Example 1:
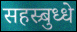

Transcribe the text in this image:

सहस्र्बुध्धे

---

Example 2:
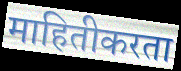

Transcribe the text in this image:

माहितीकरता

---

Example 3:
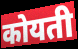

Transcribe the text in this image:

कोयती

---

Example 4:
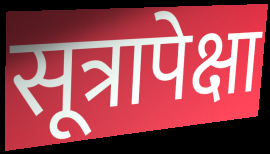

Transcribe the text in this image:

सूत्रापेक्षा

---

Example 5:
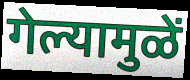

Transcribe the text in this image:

गेल्यामुळें